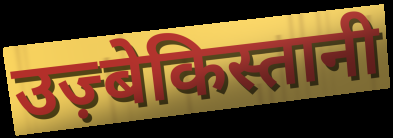
उज़्बेकिस्तानी